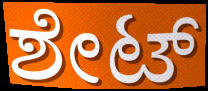
ಶೇಟ್